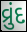
વ્રુંદ